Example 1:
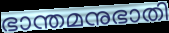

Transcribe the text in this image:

ഭാന്തമനുഭാതി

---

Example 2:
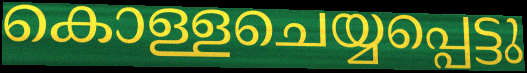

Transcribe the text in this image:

കൊള്ളചെയ്യപ്പെട്ടു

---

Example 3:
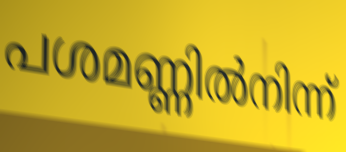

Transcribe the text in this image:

പശമണ്ണിൽനിന്ന്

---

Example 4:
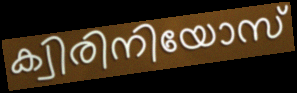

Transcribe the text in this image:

ക്വിരിനിയോസ്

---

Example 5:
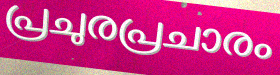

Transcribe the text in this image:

പ്രചുരപ്രചാരം